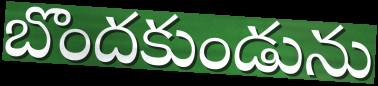
బొందకుండును